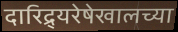
दारिद्र्यरेषेखालच्या